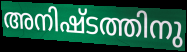
അനിഷ്ടത്തിനു